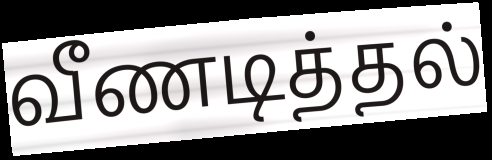
வீணடித்தல்